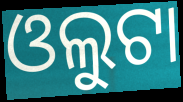
ଓଲୁଟା